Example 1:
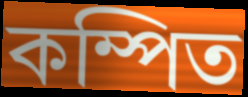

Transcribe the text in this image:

কম্পিত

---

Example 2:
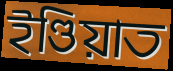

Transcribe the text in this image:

ইণ্ডিয়াত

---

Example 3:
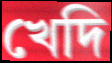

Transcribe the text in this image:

খেদি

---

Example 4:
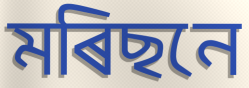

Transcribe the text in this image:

মৰিছনে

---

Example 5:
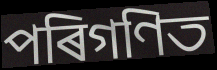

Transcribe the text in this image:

পৰিগণিত